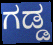
ಗಡ್ಡ